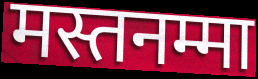
मस्तनम्मा